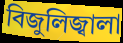
বিজুলিজ্বালা